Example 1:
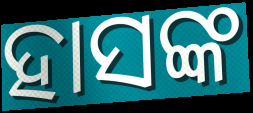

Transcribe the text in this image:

ହାସଙ୍କ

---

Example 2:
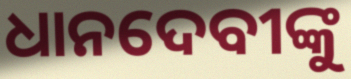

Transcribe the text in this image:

ଧାନଦେବୀଙ୍କୁ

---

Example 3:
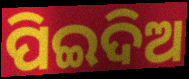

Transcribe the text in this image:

ପିଇଦିଅ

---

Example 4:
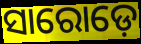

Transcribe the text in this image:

ସାରୋଡ଼େ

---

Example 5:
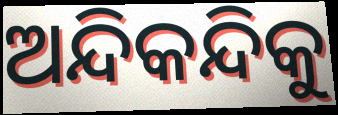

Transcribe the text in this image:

ଅନ୍ଦିକନ୍ଦିକୁ